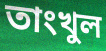
তাংখুল